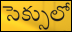
సెక్సులో